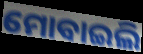
ମୋବାଇଲି